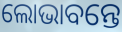
ଲୋଭାବନ୍ତେ